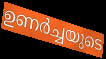
ഉണർച്ചയുടെ